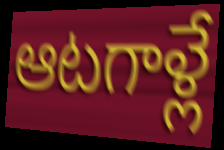
ఆటగాళ్లే